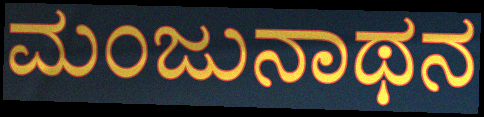
ಮಂಜುನಾಥನ